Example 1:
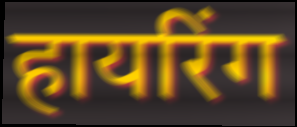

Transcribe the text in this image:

हायरिंग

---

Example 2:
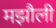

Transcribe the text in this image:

मझौली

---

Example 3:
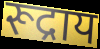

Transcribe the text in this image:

रूद्राय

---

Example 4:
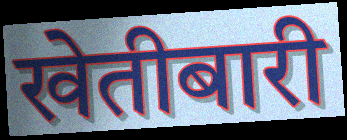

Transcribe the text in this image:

खेतीबारी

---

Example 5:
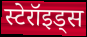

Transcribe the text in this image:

स्टेरॉइड्स